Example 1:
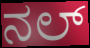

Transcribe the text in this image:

ನಲ್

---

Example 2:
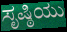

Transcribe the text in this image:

ಸೃಷ್ಠಿಯು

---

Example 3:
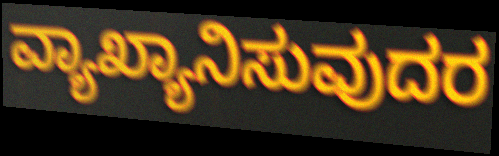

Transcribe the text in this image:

ವ್ಯಾಖ್ಯಾನಿಸುವುದರ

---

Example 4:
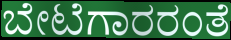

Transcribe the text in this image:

ಬೇಟೆಗಾರರಂತೆ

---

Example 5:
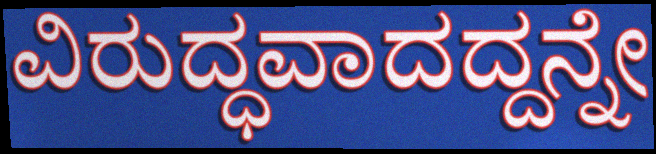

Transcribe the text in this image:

ವಿರುದ್ಧವಾದದ್ದನ್ನೇ